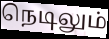
நெடிலும்